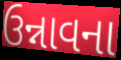
ઉન્નાવના